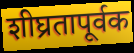
शीघ्रतापूर्वक